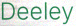
Deeley